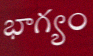
భాగ్యం